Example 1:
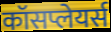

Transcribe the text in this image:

कॉसप्लेयर्स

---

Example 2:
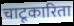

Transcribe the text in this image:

चाटूकारिता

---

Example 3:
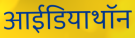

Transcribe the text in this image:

आईडियाथॉन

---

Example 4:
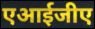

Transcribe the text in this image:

एआईजीए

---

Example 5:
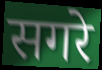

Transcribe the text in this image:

सगरे